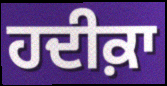
ਹਦੀਕ਼ਾ